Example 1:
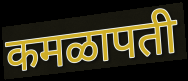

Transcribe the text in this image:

कमळापती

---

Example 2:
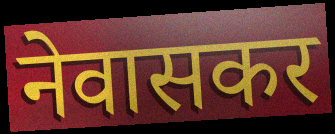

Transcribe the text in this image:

नेवासकर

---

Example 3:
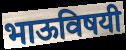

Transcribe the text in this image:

भाऊविषयी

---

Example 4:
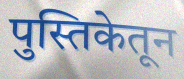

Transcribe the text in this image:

पुस्तिकेतून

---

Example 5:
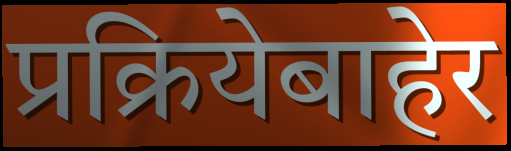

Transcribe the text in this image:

प्रक्रियेबाहेर